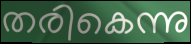
തരികെന്നു